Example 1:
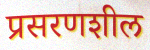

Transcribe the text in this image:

प्रसरणशील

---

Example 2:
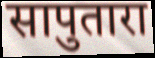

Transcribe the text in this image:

सापुतारा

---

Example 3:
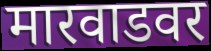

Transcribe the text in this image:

मारवाडवर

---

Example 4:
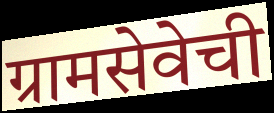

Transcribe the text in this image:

ग्रामसेवेची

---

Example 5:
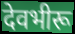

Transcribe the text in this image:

देवभीरू